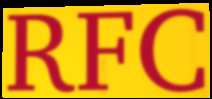
RFC